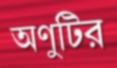
অণুটির